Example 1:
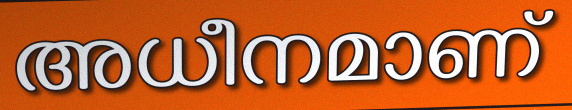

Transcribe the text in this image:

അധീനമാണ്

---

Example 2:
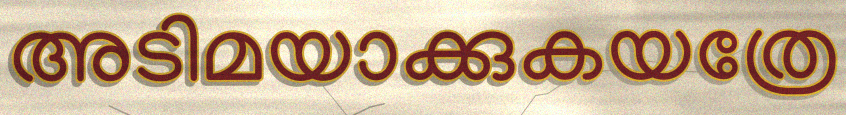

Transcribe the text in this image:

അടിമയാക്കുകയത്രേ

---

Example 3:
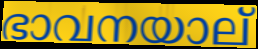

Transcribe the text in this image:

ഭാവനയാല്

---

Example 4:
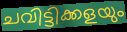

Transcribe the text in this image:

ചവിട്ടിക്കളയും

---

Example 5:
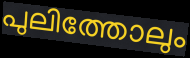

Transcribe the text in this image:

പുലിത്തോലും